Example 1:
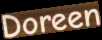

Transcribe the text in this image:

Doreen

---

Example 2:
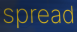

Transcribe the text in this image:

spread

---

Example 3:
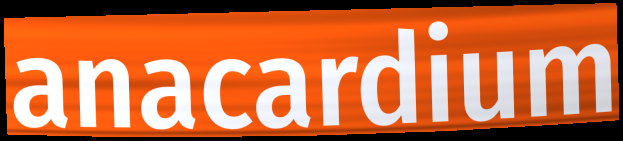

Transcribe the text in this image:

anacardium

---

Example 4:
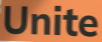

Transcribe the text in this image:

Unite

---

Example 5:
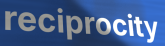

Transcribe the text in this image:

reciprocity